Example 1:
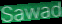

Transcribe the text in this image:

Sawad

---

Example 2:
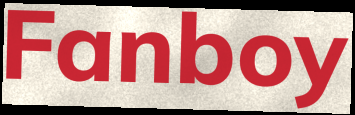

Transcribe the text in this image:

Fanboy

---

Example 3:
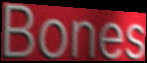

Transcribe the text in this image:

Bones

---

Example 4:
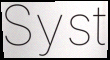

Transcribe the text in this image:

Syst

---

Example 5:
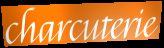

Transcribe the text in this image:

charcuterie